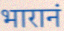
भारानं